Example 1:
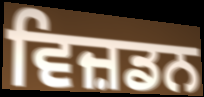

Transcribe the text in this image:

ਵਿਜ਼ਡਨ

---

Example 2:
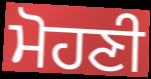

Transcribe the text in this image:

ਮੋਹਣੀ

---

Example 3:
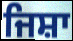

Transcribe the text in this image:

ਜਿਸ਼ਾ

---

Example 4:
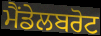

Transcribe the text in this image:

ਮੈਂਡੇਲਬਰੋਟ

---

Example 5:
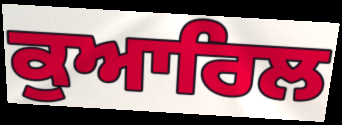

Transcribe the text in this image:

ਕੁਆਰਿਲ